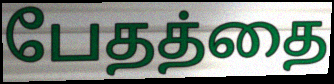
பேதத்தை